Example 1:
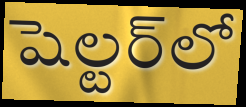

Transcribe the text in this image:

షెల్టర్‌లో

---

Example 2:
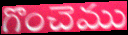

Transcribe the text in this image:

గొంచెము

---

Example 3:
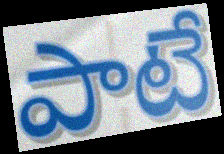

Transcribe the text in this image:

పాటే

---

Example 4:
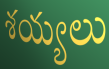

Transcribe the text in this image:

శయ్యలు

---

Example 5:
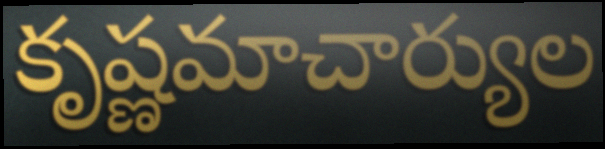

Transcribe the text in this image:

కృష్ణమాచార్యుల